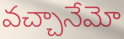
వచ్చానేమో